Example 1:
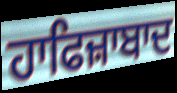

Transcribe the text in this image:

ਹਾਫਿਜ਼ਾਬਾਦ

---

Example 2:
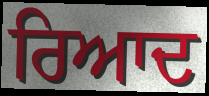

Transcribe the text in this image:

ਰਿਆਦ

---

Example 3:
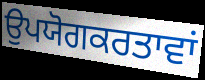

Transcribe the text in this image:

ਉਪਯੋਗਕਰਤਾਵਾਂ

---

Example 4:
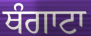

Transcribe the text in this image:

ਥੰਗਾਟਾ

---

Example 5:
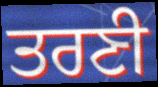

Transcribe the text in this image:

ਤਰਣੀ